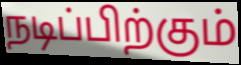
நடிப்பிற்கும்